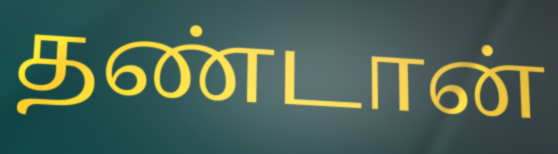
தண்டான்